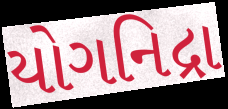
યોગનિદ્રા